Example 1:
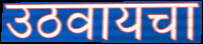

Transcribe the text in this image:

उठवायचा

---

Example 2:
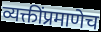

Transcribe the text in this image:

व्यक्तींप्रमाणेच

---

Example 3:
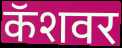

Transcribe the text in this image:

कॅशवर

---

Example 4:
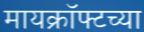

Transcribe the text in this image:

मायक्रॉफ्टच्या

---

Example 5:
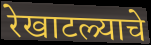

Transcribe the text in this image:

रेखाटल्याचे